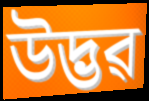
উদ্ভৱ